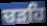
ਚੜਹਿ